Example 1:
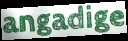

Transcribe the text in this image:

angadige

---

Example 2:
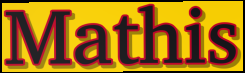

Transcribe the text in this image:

Mathis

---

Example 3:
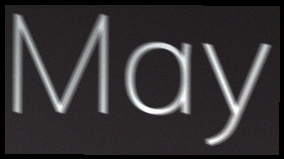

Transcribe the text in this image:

May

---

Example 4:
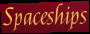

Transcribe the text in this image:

Spaceships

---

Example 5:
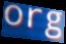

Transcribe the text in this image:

org